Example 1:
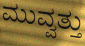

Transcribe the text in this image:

ಮುವ್ವತ್ತು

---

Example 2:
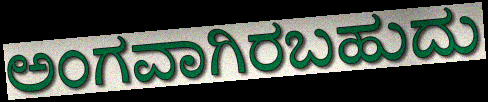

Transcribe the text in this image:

ಅಂಗವಾಗಿರಬಹುದು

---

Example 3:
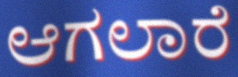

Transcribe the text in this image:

ಆಗಲಾರೆ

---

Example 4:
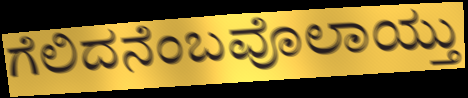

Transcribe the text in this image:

ಗೆಲಿದನೆಂಬವೊಲಾಯ್ತು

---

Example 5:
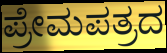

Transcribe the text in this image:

ಪ್ರೇಮಪತ್ರದ